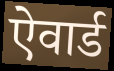
ऐवार्ड